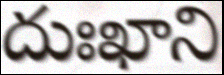
దుఃఖాని